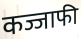
कज्जाफी